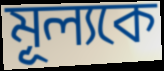
মূল্যকে